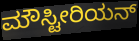
ಮೌಸ್ಟೀರಿಯನ್